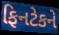
ફિનટેકને